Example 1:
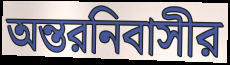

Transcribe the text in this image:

অন্তরনিবাসীর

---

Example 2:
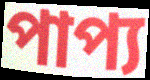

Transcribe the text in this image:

পাপ্য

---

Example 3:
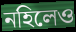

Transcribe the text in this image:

নহিলেও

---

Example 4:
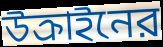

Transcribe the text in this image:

উক্রাইনের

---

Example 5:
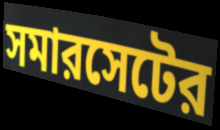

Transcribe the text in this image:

সমারসেটের